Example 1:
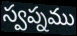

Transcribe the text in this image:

స్వప్నము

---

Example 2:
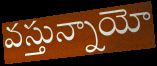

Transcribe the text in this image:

వస్తున్నాయో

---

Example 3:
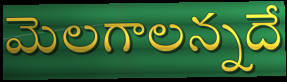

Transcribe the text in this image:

మెలగాలన్నదే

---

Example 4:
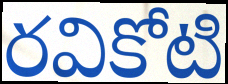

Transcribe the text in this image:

రవికోటి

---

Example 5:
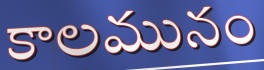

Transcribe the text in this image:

కాలమునం